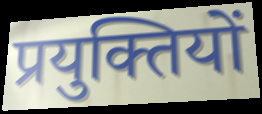
प्रयुक्तियों